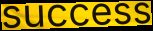
success